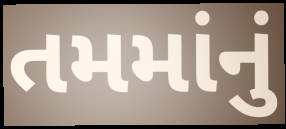
તમમાંનું